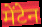
मेंटेन